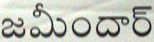
జమీందార్